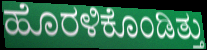
ಹೊರಳಿಕೊಂಡಿತ್ತು